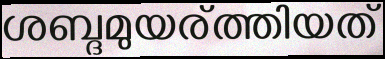
ശബ്ദമുയര്ത്തിയത്